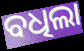
ବଧିଲା